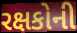
રક્ષકોની